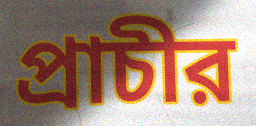
প্রাচীর